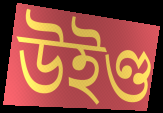
উইণ্ড